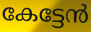
കേട്ടേൻ